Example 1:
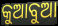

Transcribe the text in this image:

କୁଆବୁଆ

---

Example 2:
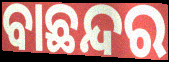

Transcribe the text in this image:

ବାଛନ୍ଦର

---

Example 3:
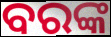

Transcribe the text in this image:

ବରଙ୍କ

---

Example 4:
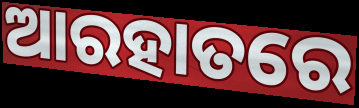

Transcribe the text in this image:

ଆରହାତରେ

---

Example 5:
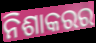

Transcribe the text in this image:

ନିଶାକରର